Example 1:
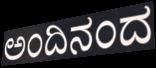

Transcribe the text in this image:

ಅಂದಿನಂದ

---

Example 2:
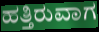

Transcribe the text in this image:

ಹತ್ತಿರುವಾಗ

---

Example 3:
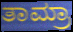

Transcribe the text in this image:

ತಾಮ್ರಾ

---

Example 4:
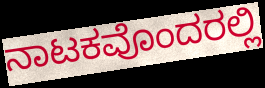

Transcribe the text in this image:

ನಾಟಕವೊಂದರಲ್ಲಿ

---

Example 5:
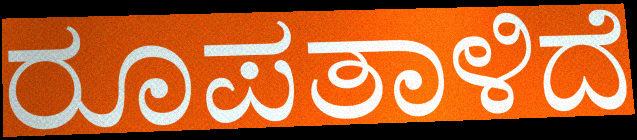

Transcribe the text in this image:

ರೂಪತಾಳಿದೆ